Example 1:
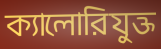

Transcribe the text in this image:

ক্যালোরিযুক্ত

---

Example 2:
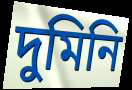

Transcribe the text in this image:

দুমিনি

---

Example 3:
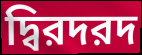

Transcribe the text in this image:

দ্বিরদরদ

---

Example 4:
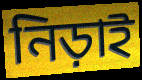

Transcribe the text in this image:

নিড়াই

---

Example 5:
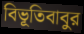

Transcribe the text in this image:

বিভূতিবাবুর